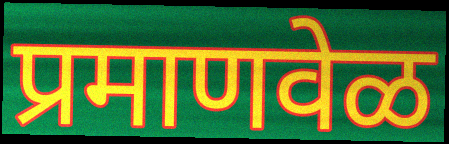
प्रमाणवेळ